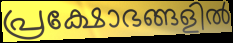
പ്രക്ഷോഭങ്ങളിൽ